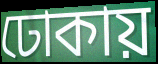
ঢোকায়